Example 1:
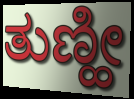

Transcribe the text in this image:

ತುಣ್ಹೀ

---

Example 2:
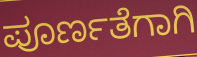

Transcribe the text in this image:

ಪೂರ್ಣತೆಗಾಗಿ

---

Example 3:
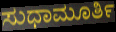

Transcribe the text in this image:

ಸುಧಾಮೂರ್ತಿ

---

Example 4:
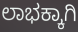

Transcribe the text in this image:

ಲಾಭಕ್ಕಾಗಿ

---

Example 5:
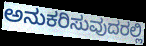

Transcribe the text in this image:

ಅನುಕರಿಸುವುದರಲ್ಲಿ